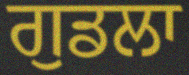
ਗੁਡਲਾ